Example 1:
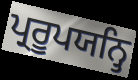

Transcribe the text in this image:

ਪ੍ਰਰੂਪਯਨ੍ਤਿ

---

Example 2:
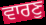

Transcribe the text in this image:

ਵਾਰਣੁ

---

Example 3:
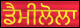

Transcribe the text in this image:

ਡੈਮੀਲੋਲਾ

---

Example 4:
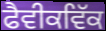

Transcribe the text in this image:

ਫੈਵੀਕਵਿੱਕ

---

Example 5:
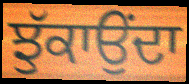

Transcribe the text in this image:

ਝੁੱਕਾਉਂਦਾ